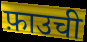
फ़ाउची